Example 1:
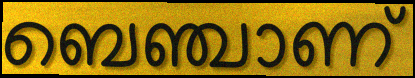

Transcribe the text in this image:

ബെഞ്ചാണ്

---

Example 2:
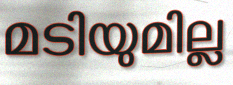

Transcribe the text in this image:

മടിയുമില്ല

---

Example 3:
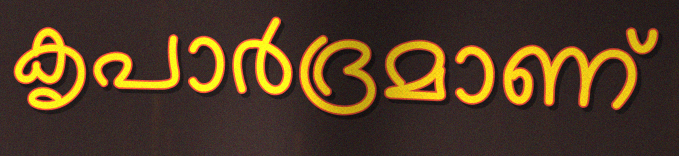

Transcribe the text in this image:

കൃപാർദ്രമാണ്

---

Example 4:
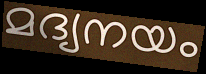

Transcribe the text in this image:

മദ്യനയം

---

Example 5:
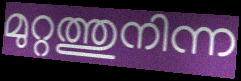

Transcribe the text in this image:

മുറ്റത്തുനിന്ന